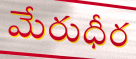
మేరుధీర